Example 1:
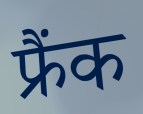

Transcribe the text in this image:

फ्रैंक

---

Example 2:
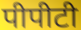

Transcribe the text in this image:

पीपीटी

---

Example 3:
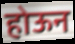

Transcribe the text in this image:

होऊन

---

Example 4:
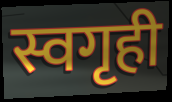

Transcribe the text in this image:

स्वगृही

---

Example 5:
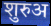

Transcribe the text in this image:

शुरुअ